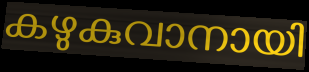
കഴുകുവാനായി